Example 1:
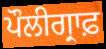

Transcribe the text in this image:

ਪੌਲੀਗ੍ਰਾਫ਼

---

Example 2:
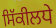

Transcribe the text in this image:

ਸਿੱਕੀਲਧੇ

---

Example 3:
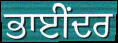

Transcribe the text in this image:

ਭਾਈੇਂਦਰ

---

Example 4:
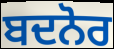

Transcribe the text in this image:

ਬਦਨੋਰ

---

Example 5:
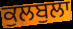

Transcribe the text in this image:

ਕੁਲਬੁਲਾ